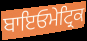
ਬਾਇਓਮੇਟ੍ਰਿਕ